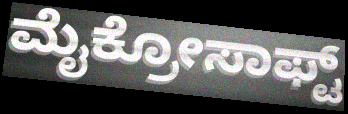
ಮೈಕ್ರೋಸಾಫ್ಟ್